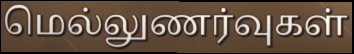
மெல்லுணர்வுகள்